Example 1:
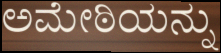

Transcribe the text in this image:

ಅಮೇಠಿಯನ್ನು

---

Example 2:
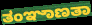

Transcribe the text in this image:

ತಂಞಾಣತಾ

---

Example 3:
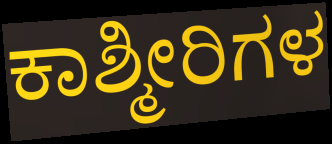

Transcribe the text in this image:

ಕಾಶ್ಮೀರಿಗಳ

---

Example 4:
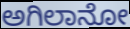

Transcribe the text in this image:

ಅಗಿಲಾನೋ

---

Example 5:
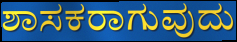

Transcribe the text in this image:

ಶಾಸಕರಾಗುವುದು